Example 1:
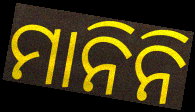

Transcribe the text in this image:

ମାନିନି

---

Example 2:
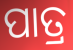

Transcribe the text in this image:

ପାତ୍ର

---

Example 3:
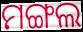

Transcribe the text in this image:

ମଙ୍ଗଲ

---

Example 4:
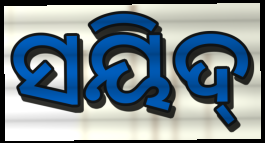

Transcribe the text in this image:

ସୟିଦ୍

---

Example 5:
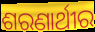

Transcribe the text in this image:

ଶରଣାର୍ଥୀର